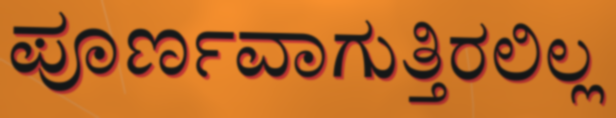
ಪೂರ್ಣವಾಗುತ್ತಿರಲಿಲ್ಲ